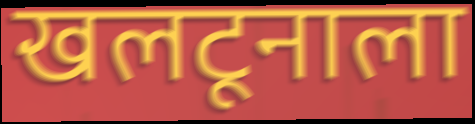
खलटूनाला